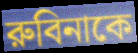
রুবিনাকে